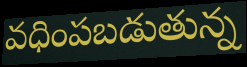
వధింపబడుతున్న